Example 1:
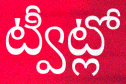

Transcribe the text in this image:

ట్వీట్లో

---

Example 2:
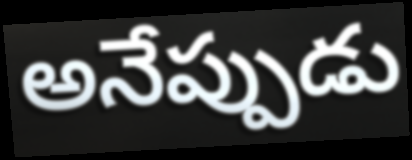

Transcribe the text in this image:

అనేప్పుడు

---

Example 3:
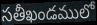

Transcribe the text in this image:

సతీఖండములో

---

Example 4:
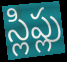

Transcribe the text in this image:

స్లిప్లు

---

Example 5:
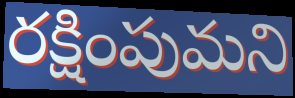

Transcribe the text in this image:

రక్షింపుమని